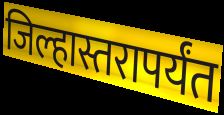
जिल्हास्तरापर्यंत